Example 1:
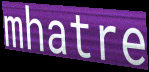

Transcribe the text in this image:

mhatre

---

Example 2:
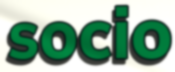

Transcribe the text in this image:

socio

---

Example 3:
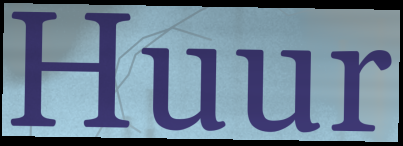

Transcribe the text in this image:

Huur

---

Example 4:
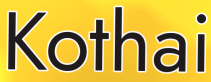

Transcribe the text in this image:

Kothai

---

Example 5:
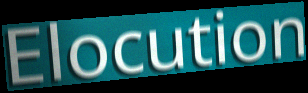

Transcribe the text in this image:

Elocution